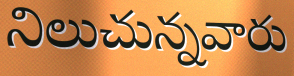
నిలుచున్నవారు